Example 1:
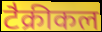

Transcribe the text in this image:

टैक्रीकल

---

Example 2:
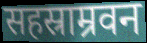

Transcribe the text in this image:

सहस्राम्रवन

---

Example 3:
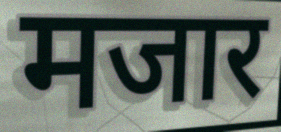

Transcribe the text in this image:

मजार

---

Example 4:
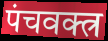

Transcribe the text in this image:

पंचवक्त्र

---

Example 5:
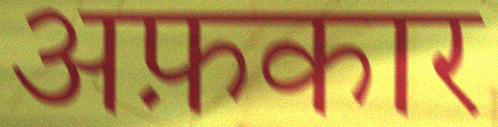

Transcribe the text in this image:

अफ़कार